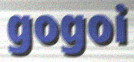
gogoi